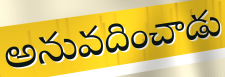
అనువదించాడు